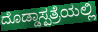
ದೊಡ್ಡಾಸ್ಪತ್ರೆಯಲ್ಲಿ